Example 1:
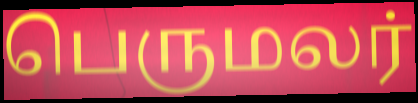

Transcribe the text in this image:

பெருமலர்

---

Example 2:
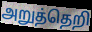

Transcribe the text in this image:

அறுத்தெறி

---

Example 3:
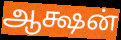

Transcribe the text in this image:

ஆக்ஷன்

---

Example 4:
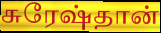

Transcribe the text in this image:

சுரேஷ்தான்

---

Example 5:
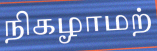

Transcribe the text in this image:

நிகழாமற்